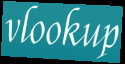
vlookup